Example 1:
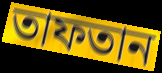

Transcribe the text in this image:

তাফতান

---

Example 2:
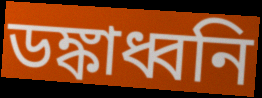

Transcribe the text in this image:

ডঙ্কাধ্বনি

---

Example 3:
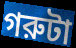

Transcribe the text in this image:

গরুটা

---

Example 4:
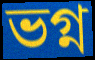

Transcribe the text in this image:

ভগ্ন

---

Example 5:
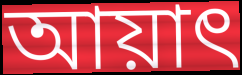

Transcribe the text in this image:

আয়াৎ